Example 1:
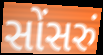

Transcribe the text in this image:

સોંસરું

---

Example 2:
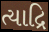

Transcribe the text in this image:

ત્યાદ્રિ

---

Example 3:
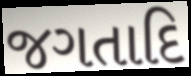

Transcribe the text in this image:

જગતાદિ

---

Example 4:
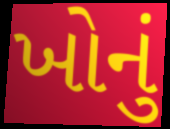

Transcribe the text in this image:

ખોનું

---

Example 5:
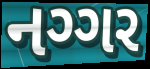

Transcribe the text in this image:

નગ્ગર